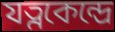
যত্নকেন্দ্রে